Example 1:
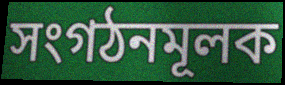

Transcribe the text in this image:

সংগঠনমূলক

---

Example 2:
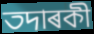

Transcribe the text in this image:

তদাৰকী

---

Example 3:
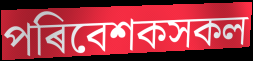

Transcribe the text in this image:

পৰিবেশকসকল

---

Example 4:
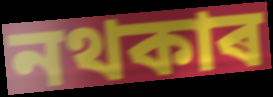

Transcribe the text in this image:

নথকাৰ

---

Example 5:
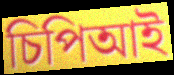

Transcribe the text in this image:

চিপিআই